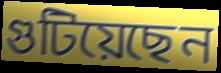
গুটিয়েছেন